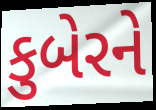
કુબેરને